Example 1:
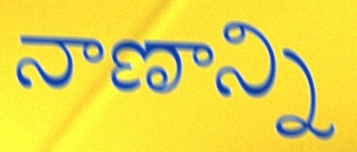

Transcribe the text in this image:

నాణాన్ని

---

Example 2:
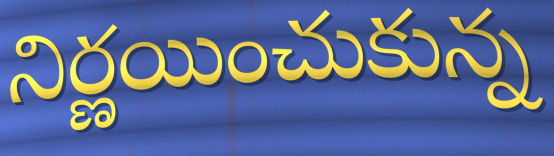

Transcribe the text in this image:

నిర్ణయించుకున్న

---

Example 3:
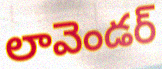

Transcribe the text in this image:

లావెండర్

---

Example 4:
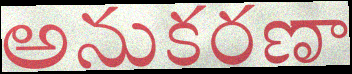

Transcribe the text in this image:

అనుకరణా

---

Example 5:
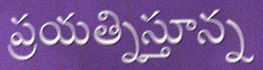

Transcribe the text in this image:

ప్రయత్నిస్తూన్న